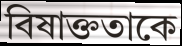
বিষাক্ততাকে